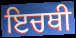
ਇਚਥੀ